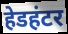
हेडहंटर